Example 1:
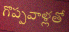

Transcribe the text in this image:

గొప్పవాళ్లతో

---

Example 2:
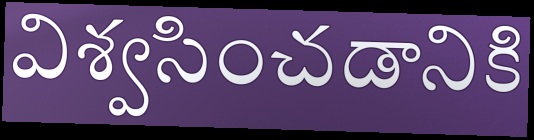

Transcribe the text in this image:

విశ్వసించడానికి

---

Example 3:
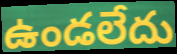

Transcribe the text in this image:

ఉండలేదు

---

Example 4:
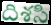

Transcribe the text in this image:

దిశసి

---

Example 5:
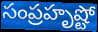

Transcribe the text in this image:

సంప్రహృష్టో